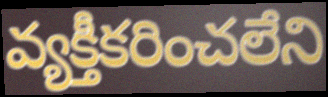
వ్యక్తీకరించలేని